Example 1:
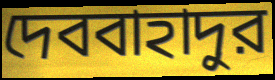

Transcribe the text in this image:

দেববাহাদুর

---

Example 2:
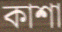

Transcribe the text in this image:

কাশা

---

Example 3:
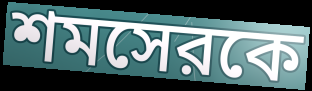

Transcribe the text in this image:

শমসেরকে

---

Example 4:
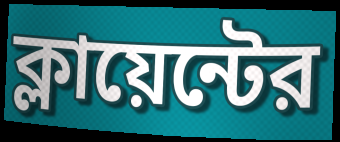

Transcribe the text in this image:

ক্লায়েন্টের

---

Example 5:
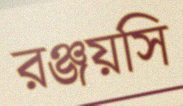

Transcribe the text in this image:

রঞ্জয়সি